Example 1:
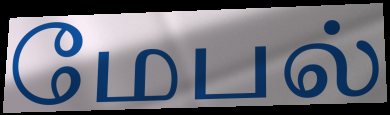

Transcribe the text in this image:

மேபல்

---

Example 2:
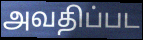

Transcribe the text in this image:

அவதிப்பட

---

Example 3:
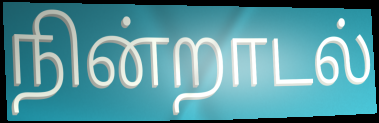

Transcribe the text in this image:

நின்றாடல்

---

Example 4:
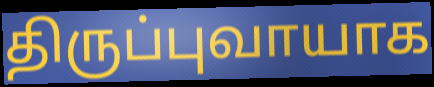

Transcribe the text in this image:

திருப்புவாயாக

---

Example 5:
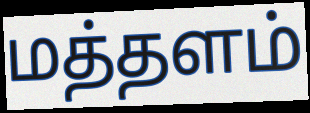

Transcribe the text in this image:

மத்தளம்